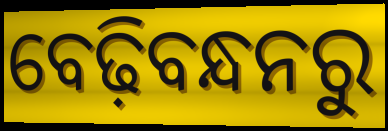
ବେଢ଼ିବନ୍ଧନରୁ